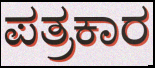
ಪತ್ರಕಾರ